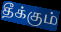
தீக்கும்